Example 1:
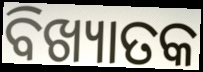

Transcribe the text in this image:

ବିଖ୍ୟାତକ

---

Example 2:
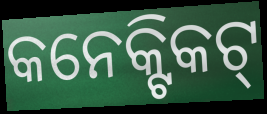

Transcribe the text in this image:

କନେକ୍ଟିକଟ୍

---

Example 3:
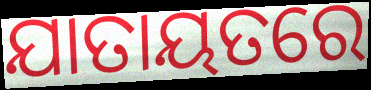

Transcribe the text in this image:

ଯାତାୟତରେ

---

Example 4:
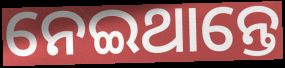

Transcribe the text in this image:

ନେଇଥାନ୍ତେ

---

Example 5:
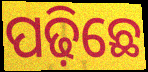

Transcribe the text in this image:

ପଢ଼ିଛେ